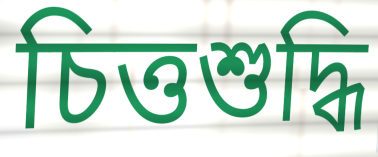
চিত্তশুদ্ধি